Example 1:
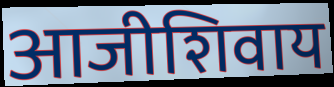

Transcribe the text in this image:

आजीशिवाय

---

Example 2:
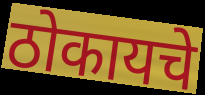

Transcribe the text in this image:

ठोकायचे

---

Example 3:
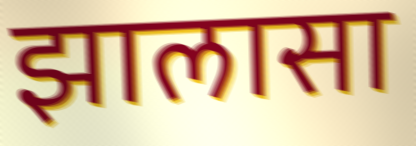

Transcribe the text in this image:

झालासा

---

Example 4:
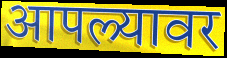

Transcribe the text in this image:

आपल्यावर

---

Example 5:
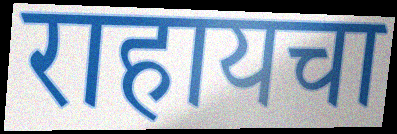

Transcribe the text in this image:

राहायचा